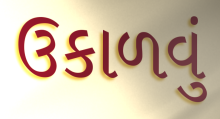
ઉકાળવું